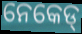
ନେକେଡ୍